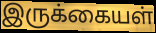
இருக்கையள்